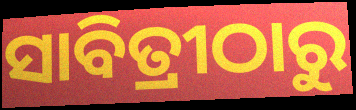
ସାବିତ୍ରୀଠାରୁ